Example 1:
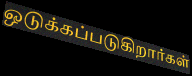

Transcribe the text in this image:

ஒடுக்கப்படுகிறார்கள்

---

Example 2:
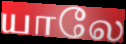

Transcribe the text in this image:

யாலே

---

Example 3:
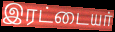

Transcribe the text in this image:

இரட்டையர்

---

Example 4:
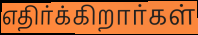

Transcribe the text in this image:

எதிர்க்கிறார்கள்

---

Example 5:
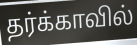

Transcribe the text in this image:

தர்க்காவில்